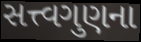
સત્ત્વગુણના